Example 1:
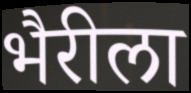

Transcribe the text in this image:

भैरीला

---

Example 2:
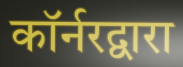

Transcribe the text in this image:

कॉर्नरद्वारा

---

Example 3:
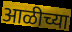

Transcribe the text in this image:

आळीच्या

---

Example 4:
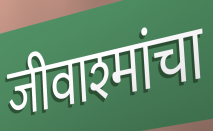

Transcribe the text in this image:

जीवाश्मांचा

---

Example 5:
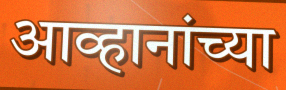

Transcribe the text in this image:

आव्हानांच्या